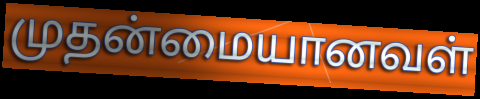
முதன்மையானவள்